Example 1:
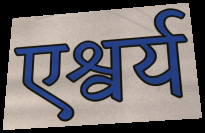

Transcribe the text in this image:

एश्वर्य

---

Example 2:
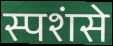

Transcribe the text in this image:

स्पशंसे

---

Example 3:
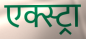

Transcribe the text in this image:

एक्स्ट्रा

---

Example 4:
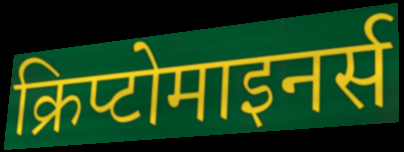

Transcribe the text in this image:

क्रिप्टोमाइनर्स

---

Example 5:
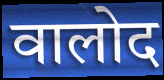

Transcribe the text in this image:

वालोद